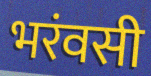
भरंवसी